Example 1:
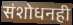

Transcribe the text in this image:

संशोधनही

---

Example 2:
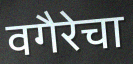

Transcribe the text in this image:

वगैरेचा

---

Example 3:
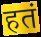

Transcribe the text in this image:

हतं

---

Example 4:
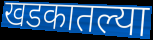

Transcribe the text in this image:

खडकातल्या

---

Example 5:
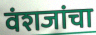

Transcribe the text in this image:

वंशजांचा